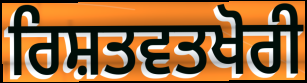
ਰਿਸ਼ਤਵਤਖੋਰੀ